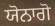
ਯੋਨਾਗੋ